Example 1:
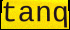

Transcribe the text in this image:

tanq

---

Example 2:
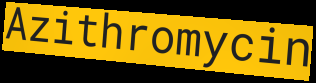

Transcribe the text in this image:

Azithromycin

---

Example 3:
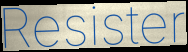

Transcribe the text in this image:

Resister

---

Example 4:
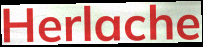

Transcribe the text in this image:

Herlache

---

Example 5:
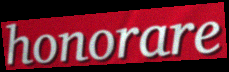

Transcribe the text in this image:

honorare